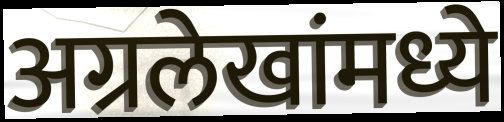
अग्रलेखांमध्ये